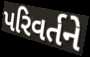
પરિવર્તને